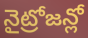
నైట్రోజన్లో